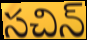
సచిన్